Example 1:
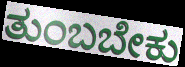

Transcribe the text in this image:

ತುಂಬಬೇಕು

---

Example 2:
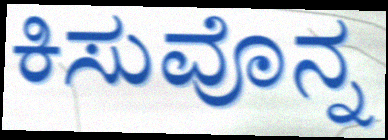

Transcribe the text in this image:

ಕಿಸುವೊನ್ನ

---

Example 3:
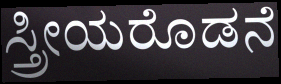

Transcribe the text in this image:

ಸ್ತ್ರೀಯರೊಡನೆ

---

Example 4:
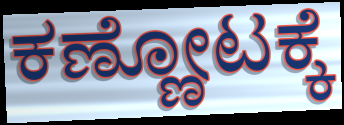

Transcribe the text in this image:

ಕಣ್ಣೋಟಕ್ಕೆ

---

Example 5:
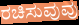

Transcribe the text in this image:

ರಚಿಸುವುವು